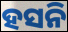
ହସନି